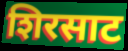
शिरसाट